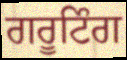
ਗਰੂਟਿੰਗ